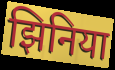
झिनिया